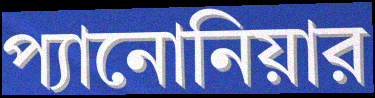
প্যানোনিয়ার